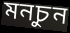
মনচুন